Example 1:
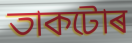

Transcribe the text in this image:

তাকটোৰ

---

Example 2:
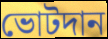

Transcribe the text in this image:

ভোটদান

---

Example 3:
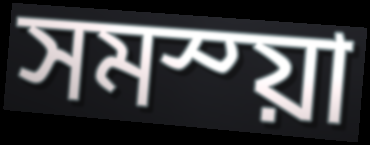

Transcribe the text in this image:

সমস্য়া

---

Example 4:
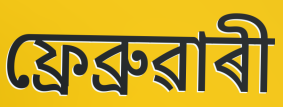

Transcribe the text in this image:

ফ্ৰেব্ৰুৱাৰী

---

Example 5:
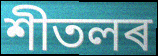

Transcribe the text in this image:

শীতলৰ